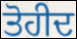
ਤੋਹੀਦ